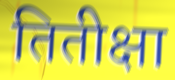
तितीक्षा